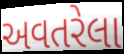
અવતરેલા